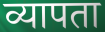
व्यापता